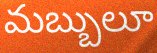
మబ్బులూ